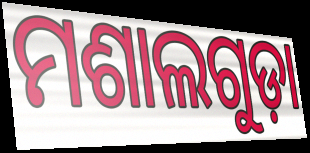
ମଶାଲଗୁଡ଼ା